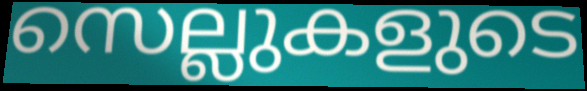
സെല്ലുകളുടെ